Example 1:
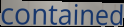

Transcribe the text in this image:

contained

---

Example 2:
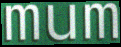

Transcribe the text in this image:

mum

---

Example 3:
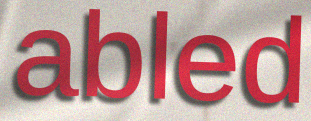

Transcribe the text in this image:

abled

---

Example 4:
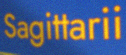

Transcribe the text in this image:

Sagittarii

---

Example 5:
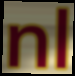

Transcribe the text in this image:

nl